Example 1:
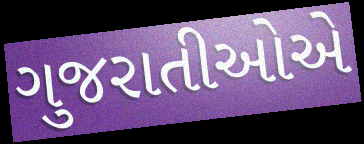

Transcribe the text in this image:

ગુજરાતીઓએ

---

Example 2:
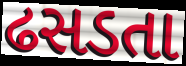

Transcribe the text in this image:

ઢસડતા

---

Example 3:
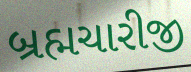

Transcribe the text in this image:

બ્રહ્મચારીજી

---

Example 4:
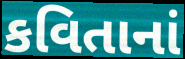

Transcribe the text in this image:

કવિતાનાં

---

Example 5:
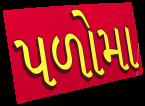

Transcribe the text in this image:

પળોમા